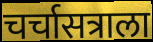
चर्चासत्राला